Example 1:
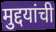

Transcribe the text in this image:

मुद्दयांची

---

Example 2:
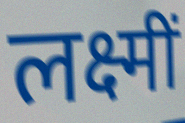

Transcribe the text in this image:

लक्ष्मीं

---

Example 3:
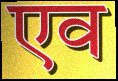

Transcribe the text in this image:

एव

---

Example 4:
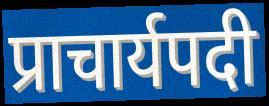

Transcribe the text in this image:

प्राचार्यपदी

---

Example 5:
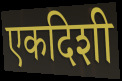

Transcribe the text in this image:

एकदिशी